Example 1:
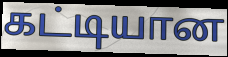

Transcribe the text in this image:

கட்டியான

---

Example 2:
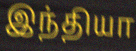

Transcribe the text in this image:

இந்தியா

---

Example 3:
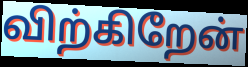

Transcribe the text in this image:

விற்கிறேன்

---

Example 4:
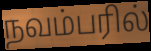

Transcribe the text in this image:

நவம்பரில்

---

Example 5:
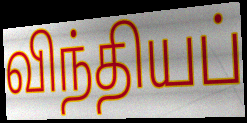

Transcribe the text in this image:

விந்தியப்